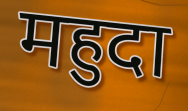
महुदा